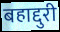
बहाद्दुरी